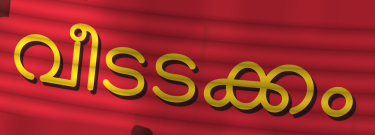
വീടടക്കം